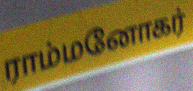
ராம்மனோகர்